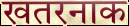
खतरनाक